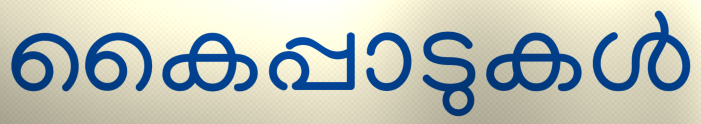
കൈപ്പാടുകൾ